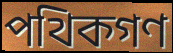
পথিকগণ